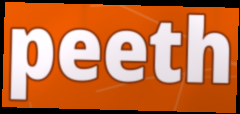
peeth